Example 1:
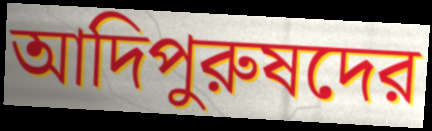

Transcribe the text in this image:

আদিপুরুষদের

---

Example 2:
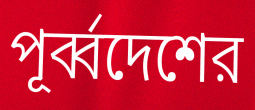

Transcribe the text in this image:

পূর্ব্বদেশের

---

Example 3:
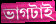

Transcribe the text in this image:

ভাগটাই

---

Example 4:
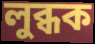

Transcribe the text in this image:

লুব্ধক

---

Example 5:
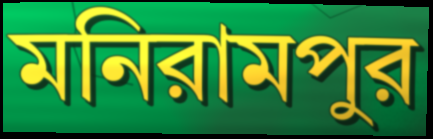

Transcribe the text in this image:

মনিরামপুর